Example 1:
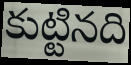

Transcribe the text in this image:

కుట్టినది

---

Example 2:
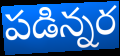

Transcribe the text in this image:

పడిన్నర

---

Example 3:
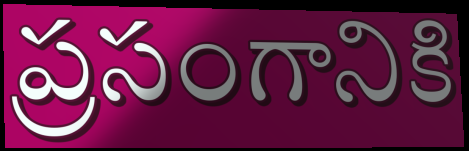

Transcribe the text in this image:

ప్రసంగానికి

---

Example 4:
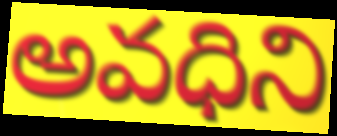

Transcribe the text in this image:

అవధిని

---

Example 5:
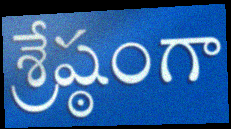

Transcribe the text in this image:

శ్రేష్ఠంగా